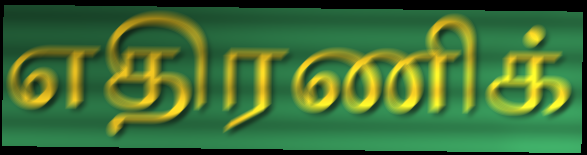
எதிரணிக்